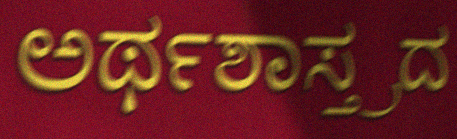
ಅರ್ಥಶಾಸ್ತ್ರದ